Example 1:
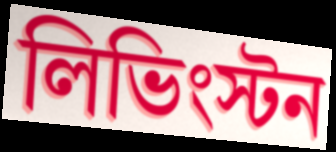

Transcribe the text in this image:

লিভিংস্টন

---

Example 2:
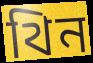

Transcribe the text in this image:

থিন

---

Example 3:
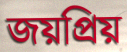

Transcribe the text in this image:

জয়প্রিয়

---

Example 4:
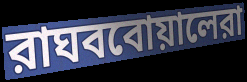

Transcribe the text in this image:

রাঘববোয়ালেরা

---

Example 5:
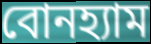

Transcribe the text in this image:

বোনহ্যাম